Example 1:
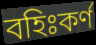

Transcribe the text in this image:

বহিঃকর্ণ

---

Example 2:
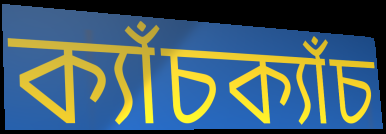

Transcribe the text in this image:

ক্যাঁচক্যাঁচ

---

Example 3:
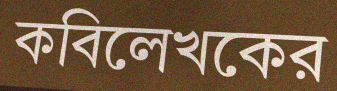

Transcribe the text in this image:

কবিলেখকের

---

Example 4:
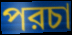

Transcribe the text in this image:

পরচা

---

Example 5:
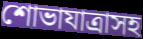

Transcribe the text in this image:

শোভাযাত্রাসহ